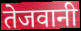
तेजवानी